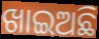
ଖାଇଅଛି